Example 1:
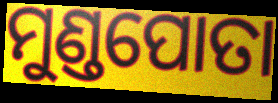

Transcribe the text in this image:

ମୁଣ୍ଡପୋତା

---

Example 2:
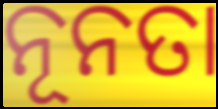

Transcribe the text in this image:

ନୂନତା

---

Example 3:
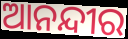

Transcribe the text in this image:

ଆନନ୍ଦୀର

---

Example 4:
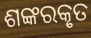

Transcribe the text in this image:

ଶଙ୍କରକୃତ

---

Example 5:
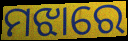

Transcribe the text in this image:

ମଝାରେ